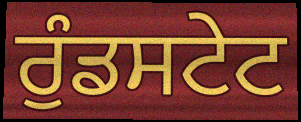
ਰੁੰਡਸਟੇਟ